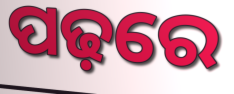
ପଢ଼ରେ